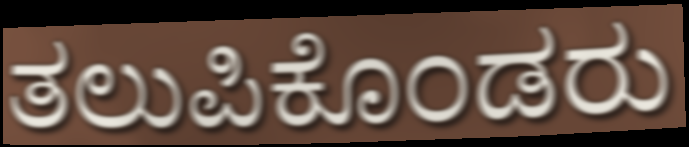
ತಲುಪಿಕೊಂಡರು